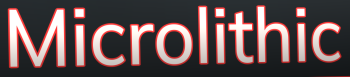
Microlithic